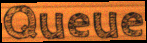
Queue